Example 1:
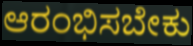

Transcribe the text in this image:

ಆರಂಭಿಸಬೇಕು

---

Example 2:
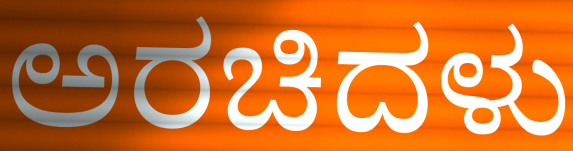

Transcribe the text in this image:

ಅರಚಿದಳು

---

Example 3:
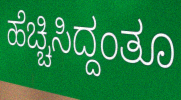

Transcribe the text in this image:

ಹೆಚ್ಚಿಸಿದ್ದಂತೂ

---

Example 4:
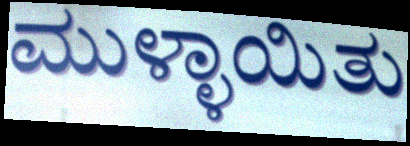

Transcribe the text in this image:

ಮುಳ್ಳಾಯಿತು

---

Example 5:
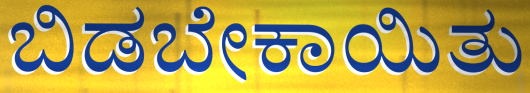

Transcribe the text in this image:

ಬಿಡಬೇಕಾಯಿತು